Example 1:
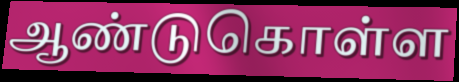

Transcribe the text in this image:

ஆண்டுகொள்ள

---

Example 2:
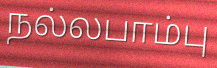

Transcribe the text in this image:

நல்லபாம்பு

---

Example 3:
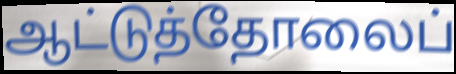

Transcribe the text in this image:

ஆட்டுத்தோலைப்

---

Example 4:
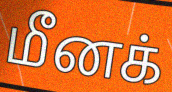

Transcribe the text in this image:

மீனக்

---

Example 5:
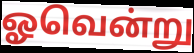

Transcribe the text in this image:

ஓவென்று